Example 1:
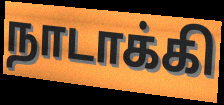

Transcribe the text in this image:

நாடாக்கி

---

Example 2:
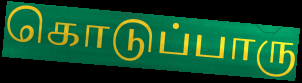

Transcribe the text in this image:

கொடுப்பாரு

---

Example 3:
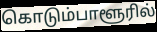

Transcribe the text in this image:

கொடும்பாளூரில்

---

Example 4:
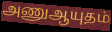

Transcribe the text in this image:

அணுஆயுதம்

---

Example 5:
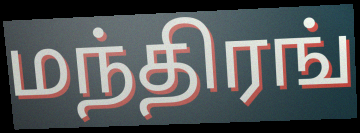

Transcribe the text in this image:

மந்திரங்